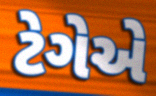
ટેગેએ